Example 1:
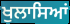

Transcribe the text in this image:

ਖੁਲਾਸਿਆਂ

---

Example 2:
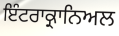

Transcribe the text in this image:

ਇੰਟਰਾਕ੍ਰਾਨਿਅਲ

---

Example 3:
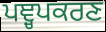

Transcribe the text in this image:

ਪਞ੍ਚਪਕਰਣ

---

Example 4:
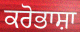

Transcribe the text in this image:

ਕਰੋਭਾਸ਼ਾ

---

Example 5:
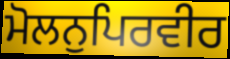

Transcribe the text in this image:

ਮੋਲਨੁਪਿਰਵੀਰ